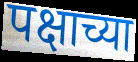
पक्षाच्या